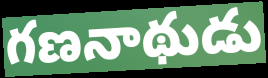
గణనాథుడు